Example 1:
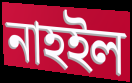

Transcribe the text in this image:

নাহইল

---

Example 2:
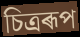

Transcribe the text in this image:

চিত্ৰৰূপ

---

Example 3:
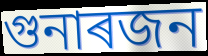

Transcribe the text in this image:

গুনাৰজন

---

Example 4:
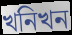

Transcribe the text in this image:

খনিখন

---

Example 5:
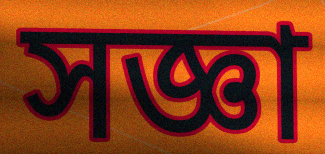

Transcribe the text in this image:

সজ্ঞা